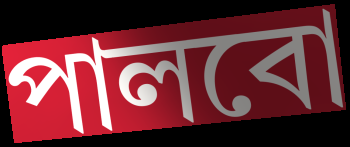
পালবো